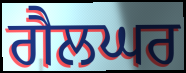
ਗੈਲਘਰ